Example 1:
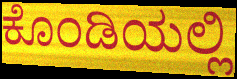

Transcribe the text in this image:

ಕೊಂಡಿಯಲ್ಲಿ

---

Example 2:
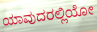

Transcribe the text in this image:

ಯಾವುದರಲ್ಲಿಯೋ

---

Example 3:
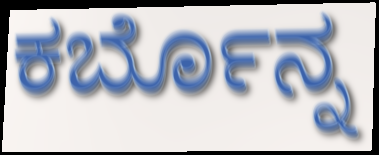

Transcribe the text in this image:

ಕರ್ಬೊನ್ನ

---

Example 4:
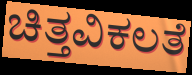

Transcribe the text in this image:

ಚಿತ್ತವಿಕಲತೆ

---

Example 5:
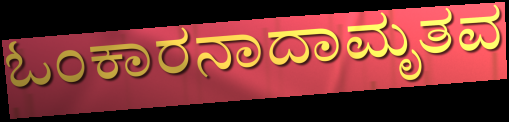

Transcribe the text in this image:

ಓಂಕಾರನಾದಾಮೃತವ